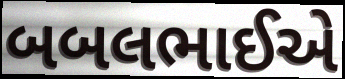
બબલભાઈએ